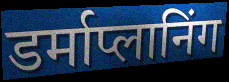
डर्माप्लानिंग